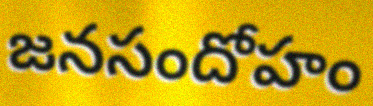
జనసందోహం